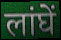
लांघें